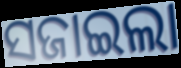
ସଜାଇଲା